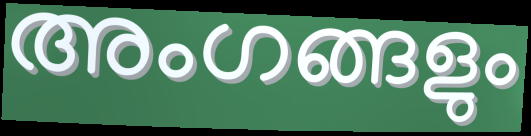
അംഗങ്ങളും